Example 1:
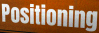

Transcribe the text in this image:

Positioning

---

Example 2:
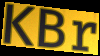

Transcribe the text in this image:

KBr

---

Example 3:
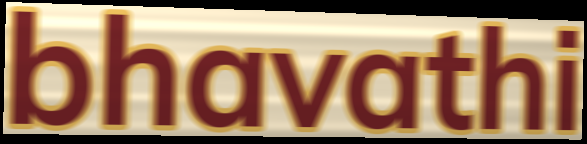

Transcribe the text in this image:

bhavathi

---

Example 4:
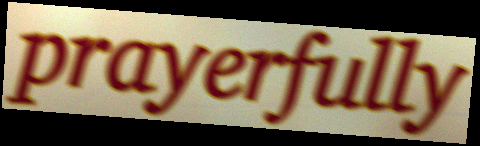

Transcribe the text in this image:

prayerfully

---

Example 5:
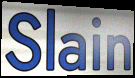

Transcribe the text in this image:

Slain